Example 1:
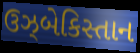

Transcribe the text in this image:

ઉઝ્બેકિસ્તાન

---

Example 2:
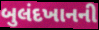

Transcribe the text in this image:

બુલંદખાનની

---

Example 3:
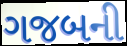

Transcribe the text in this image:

ગજબની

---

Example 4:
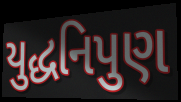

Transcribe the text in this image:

યુદ્ધનિપુણ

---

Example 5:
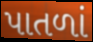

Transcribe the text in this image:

પાતળાં